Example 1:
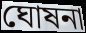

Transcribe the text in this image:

ঘোষনা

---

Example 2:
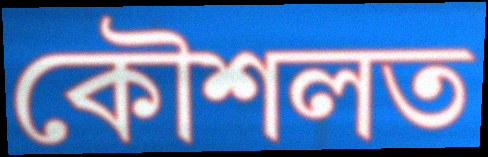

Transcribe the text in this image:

কৌশলত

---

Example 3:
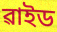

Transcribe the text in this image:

ৱাইড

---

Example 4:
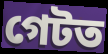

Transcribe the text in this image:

গেটত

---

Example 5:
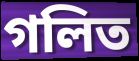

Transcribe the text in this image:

গলিত